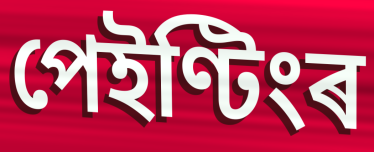
পেইণ্টিংৰ